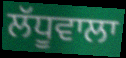
ਲੱਧੂਵਾਲਾ